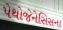
પેથોજેનેસિસના